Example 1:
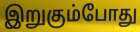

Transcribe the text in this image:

இறுகும்போது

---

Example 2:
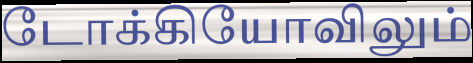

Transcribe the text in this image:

டோக்கியோவிலும்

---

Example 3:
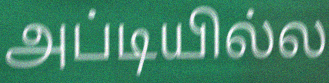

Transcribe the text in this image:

அப்டியில்ல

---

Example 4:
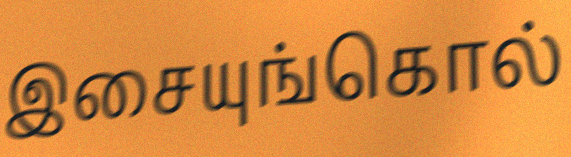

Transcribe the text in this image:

இசையுங்கொல்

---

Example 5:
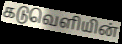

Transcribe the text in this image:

கடுவெளியின்